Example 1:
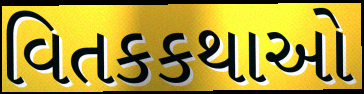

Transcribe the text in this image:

વિતકકથાઓ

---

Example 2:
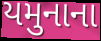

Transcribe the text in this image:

યમુનાના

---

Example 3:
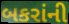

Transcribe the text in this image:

બકરાંની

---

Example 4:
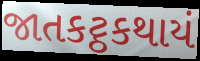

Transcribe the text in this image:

જાતકટ્ઠકથાયં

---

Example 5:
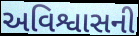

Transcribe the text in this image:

અવિશ્વાસની